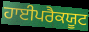
ਹਾਈਪਰੈਕਯੂਟ